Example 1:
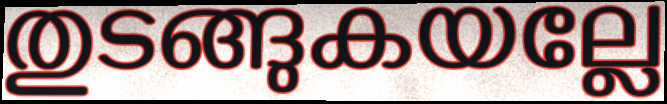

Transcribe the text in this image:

തുടങ്ങുകയല്ലേ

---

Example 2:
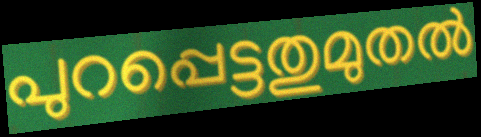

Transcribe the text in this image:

പുറപ്പെട്ടതുമുതൽ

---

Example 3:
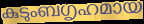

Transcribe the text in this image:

കുടുംബഗൃഹമായ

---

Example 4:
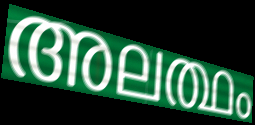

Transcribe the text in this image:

അലത്ഥം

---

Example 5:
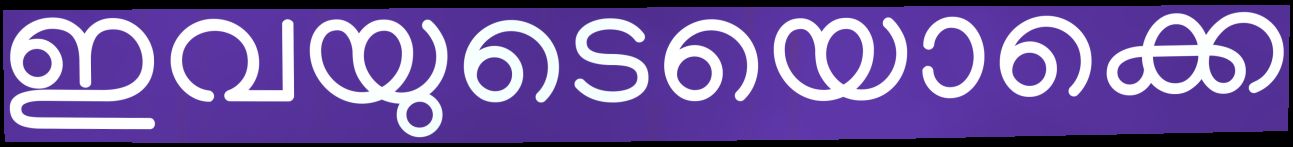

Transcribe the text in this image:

ഇവയുടെയൊക്കെ